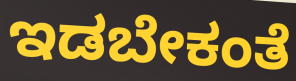
ಇಡಬೇಕಂತೆ